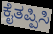
ಕೈತಪ್ಪಿಸಿ